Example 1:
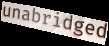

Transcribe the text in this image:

unabridged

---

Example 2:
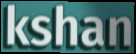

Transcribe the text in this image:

kshan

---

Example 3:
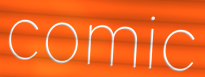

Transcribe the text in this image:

comic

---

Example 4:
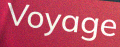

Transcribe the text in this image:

Voyage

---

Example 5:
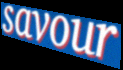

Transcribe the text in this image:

savour